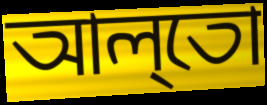
আল্‌তো